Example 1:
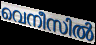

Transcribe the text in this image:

വെനീസിൽ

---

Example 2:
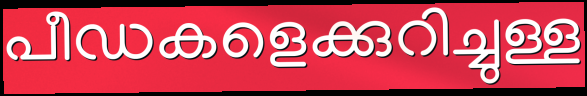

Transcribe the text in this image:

പീഡകളെക്കുറിച്ചുള്ള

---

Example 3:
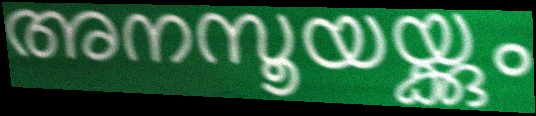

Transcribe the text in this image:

അനസൂയയ്ക്കും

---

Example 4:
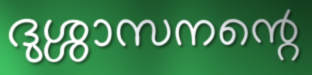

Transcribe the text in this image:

ദുശ്ശാസനന്റെ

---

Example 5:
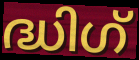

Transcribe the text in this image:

ദ്ധിഗ്